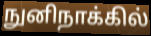
நுனிநாக்கில்